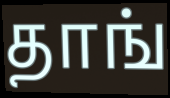
தாங்